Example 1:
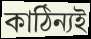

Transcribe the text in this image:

কাঠিন্যই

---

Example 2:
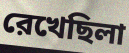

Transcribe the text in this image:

রেখেছিলা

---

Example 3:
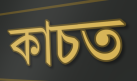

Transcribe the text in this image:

কাচত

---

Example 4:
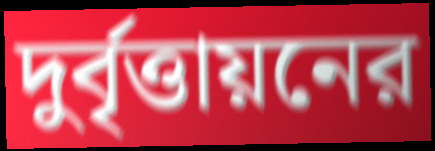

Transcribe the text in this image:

দুর্বৃত্তায়নের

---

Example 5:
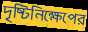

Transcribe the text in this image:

দৃষ্টিনিক্ষেপের